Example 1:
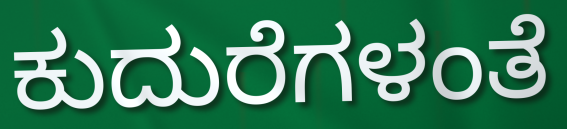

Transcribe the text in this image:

ಕುದುರೆಗಳಂತೆ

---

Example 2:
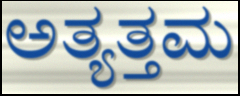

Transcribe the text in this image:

ಅತ್ಯತ್ತಮ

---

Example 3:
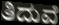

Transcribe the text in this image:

ತಿದುವೆ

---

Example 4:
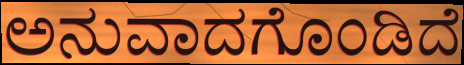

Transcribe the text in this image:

ಅನುವಾದಗೊಂಡಿದೆ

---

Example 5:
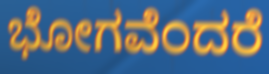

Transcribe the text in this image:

ಭೋಗವೆಂದರೆ